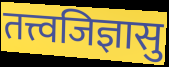
तत्त्वजिज्ञासु